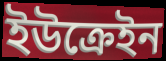
ইউক্রেইন